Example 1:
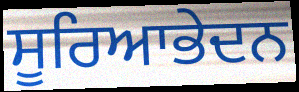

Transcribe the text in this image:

ਸੂਰਿਆਭੇਦਨ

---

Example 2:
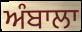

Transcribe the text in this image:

ਅੰਬਾਲਾ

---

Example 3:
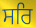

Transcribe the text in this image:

ਸਰਿ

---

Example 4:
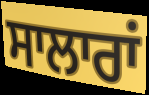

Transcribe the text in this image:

ਸਾਲਾਰਾਂ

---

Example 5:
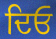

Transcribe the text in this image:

ਦਿਓ